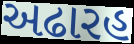
અઢારહ